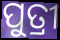
ପୁତ୍ରୀ